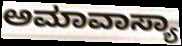
ಅಮಾವಾಸ್ಯಾ